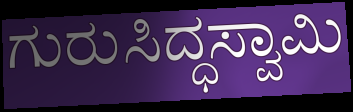
ಗುರುಸಿದ್ಧಸ್ವಾಮಿ